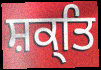
ਸ਼ਕ੍ਤਿ